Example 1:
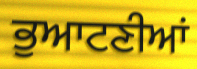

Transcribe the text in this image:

ਭੁਆਟਣੀਆਂ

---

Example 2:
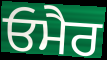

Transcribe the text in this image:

ਓਮੈਰ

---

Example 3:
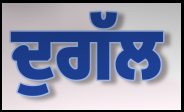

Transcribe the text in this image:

ਦੁਗੱਲ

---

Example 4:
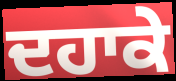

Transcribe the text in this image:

ਦਹਾਕੇ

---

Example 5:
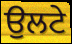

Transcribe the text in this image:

ਉਲਟੇ